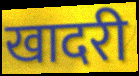
खादरी